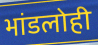
भांडलोही